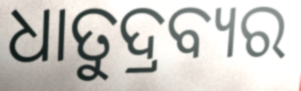
ଧାତୁଦ୍ରବ୍ୟର